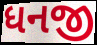
ધનજી